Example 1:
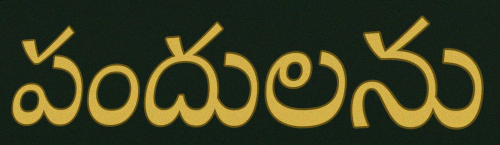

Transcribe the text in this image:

పందులను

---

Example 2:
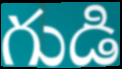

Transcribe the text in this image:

గుడి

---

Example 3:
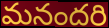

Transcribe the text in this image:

మనందరి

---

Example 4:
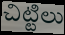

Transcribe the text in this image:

చిట్టిలు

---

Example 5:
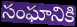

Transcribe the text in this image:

సంఘానికి